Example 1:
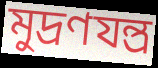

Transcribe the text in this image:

মুদ্ৰণযন্ত্ৰ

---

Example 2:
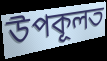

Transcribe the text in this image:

উপকূলত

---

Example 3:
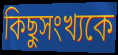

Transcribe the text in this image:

কিছুসংখ্যকে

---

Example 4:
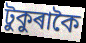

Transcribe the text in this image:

টুকুৰাকৈ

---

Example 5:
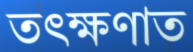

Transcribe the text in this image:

তৎক্ষণাত